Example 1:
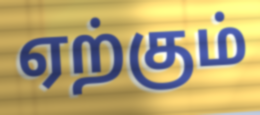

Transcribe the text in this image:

ஏற்கும்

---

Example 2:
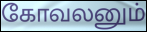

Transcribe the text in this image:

கோவலனும்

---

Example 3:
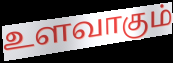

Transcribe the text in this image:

உளவாகும்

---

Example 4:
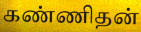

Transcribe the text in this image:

கண்ணிதன்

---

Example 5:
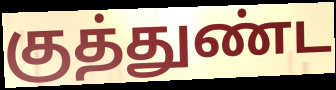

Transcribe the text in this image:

குத்துண்ட